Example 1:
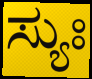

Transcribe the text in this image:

ಸ್ಯುಃ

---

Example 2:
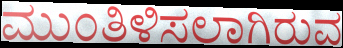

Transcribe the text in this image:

ಮುಂತಿಳಿಸಲಾಗಿರುವ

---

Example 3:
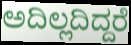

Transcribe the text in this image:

ಅದಿಲ್ಲದಿದ್ದರೆ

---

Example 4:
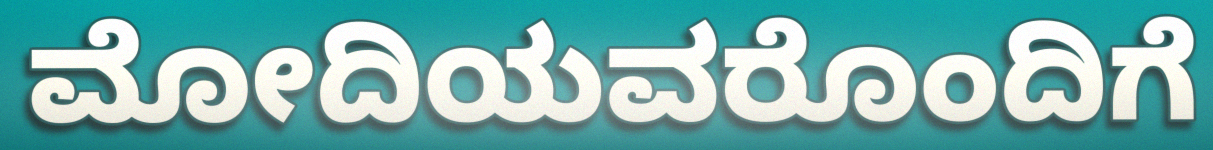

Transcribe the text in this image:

ಮೋದಿಯವರೊಂದಿಗೆ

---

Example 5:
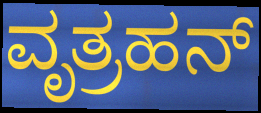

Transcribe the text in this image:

ವೃತ್ರಹನ್